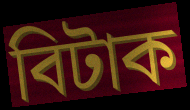
বিটাক